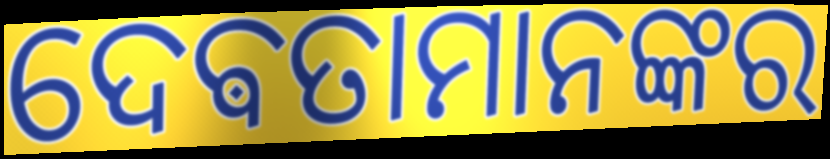
ଦେଵତାମାନଙ୍କର